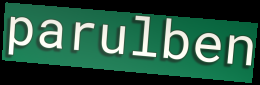
parulben